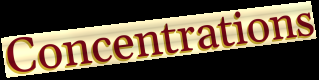
Concentrations